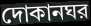
দোকানঘর